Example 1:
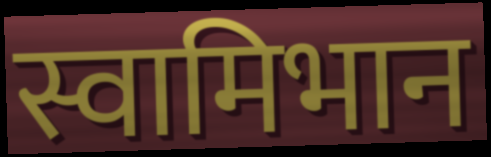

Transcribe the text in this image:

स्वामिभान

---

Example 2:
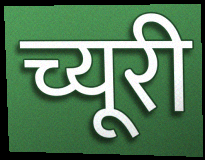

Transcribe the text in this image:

च्यूरी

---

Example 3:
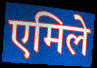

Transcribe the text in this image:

एमिले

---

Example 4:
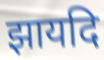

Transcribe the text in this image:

झायदि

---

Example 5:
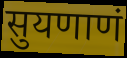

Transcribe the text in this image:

सुयणाणं